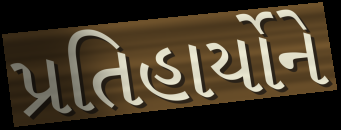
પ્રતિહાર્યોને